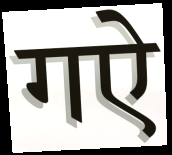
गऐ